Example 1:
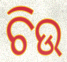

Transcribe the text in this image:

ଚିଉ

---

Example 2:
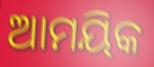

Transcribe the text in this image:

ଆମୟିକ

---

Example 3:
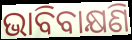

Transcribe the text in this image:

ଭାବିବାକ୍ଷଣି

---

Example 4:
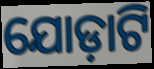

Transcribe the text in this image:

ଯୋଡ଼ାଟି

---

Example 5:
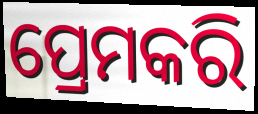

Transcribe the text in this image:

ପ୍ରେମକରି